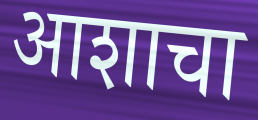
आशाचा